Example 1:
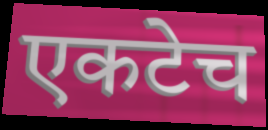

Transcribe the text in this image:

एकटेच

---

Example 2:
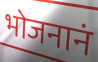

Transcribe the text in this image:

भोजनानं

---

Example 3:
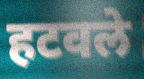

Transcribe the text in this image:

हटवले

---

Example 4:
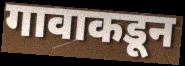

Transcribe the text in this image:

गावाकडून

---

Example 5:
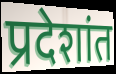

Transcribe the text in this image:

प्रदेशांत